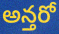
అన్తరో